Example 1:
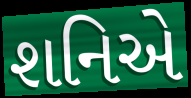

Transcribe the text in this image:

શનિએ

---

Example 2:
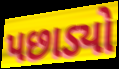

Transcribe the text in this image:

પછાડ્યો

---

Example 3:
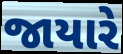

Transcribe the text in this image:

જાયારે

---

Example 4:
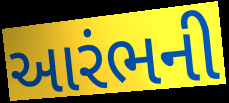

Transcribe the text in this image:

આરંભની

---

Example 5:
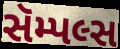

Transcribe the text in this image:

સૅમ્પલ્સ